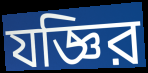
যজ্ঞির